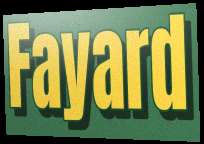
Fayard